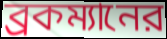
ব্রকম্যানের